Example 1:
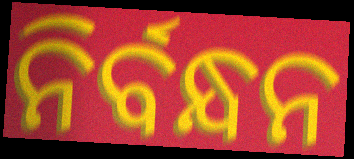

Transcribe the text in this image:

ନିର୍ବନ୍ଧନ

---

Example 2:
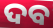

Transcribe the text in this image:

ଦବ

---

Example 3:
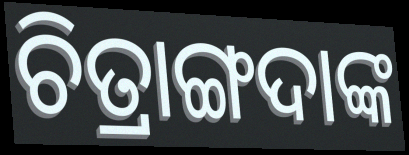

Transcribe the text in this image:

ଚିତ୍ରାଙ୍ଗଦାଙ୍କ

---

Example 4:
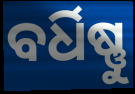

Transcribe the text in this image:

ବର୍ଧିଷ୍ଣୁ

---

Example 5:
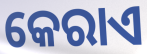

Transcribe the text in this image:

କେରାଏ